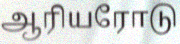
ஆரியரோடு